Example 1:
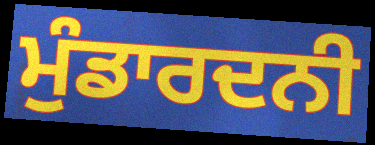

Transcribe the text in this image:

ਮੁੰਡਾਰਦਨੀ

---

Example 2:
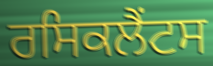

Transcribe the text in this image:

ਰਸਿਕਲੈਂਟਸ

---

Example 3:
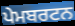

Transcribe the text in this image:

ਪੇਮਬਰਟਨ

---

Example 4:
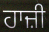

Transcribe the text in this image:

ਹਾਜ਼ੀ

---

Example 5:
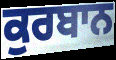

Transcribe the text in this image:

ਕੁਰਬਾਨ